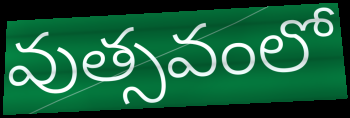
వుత్సవంలో